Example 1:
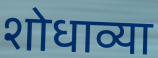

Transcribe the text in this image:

शोधाव्या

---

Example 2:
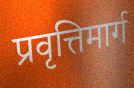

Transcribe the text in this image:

प्रवृत्तिमार्ग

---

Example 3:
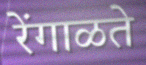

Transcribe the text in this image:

रेंगाळते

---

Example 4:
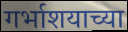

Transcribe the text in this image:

गर्भाशयाच्या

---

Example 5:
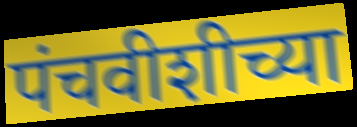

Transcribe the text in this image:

पंचवीशीच्या